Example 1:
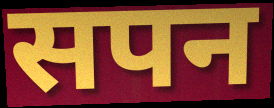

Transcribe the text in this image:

सपन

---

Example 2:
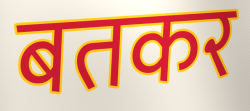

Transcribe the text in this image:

बतकर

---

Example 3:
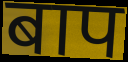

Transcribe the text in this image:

बाप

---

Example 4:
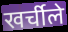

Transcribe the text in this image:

खर्चीले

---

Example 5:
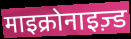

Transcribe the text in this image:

माइक्रोनाइज़्ड